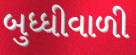
બુધ્ધીવાળી